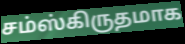
சம்ஸ்கிருதமாக